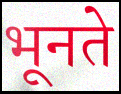
भूनते